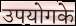
उपयोगके